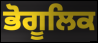
ਭੋਗੂਲਿਕ